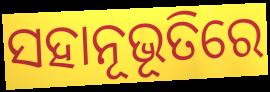
ସହାନୂଭୂତିରେ